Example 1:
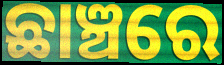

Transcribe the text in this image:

ଛାଞ୍ଚରେ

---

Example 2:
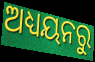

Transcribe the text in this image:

ଅଧ୍ୟୟନରୁ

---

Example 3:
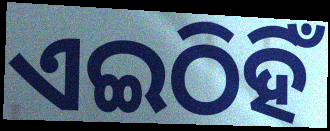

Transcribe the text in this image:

ଏଇଠିହିଁ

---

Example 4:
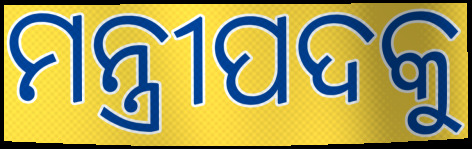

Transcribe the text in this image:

ମନ୍ତ୍ରୀପଦକୁ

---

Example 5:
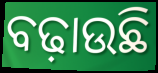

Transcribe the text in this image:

ବଢ଼ାଉଛି